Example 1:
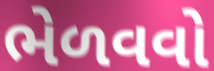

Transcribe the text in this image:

ભેળવવો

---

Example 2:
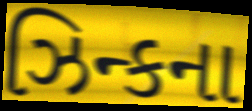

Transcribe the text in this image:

ઝિન્કના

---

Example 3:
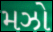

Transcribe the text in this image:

મઝો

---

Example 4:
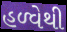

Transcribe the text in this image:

હળ્વેથી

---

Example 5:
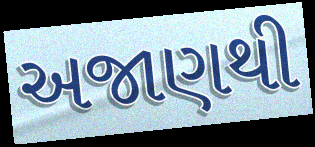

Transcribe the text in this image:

અજાણથી